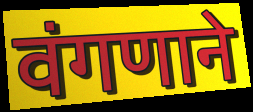
वंगणाने